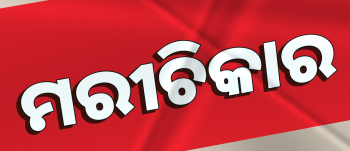
ମରୀଚିକାର